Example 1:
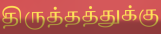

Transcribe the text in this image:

திருத்தத்துக்கு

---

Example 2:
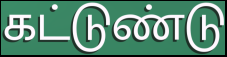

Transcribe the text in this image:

கட்டுண்டு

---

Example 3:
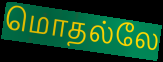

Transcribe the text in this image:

மொதல்லே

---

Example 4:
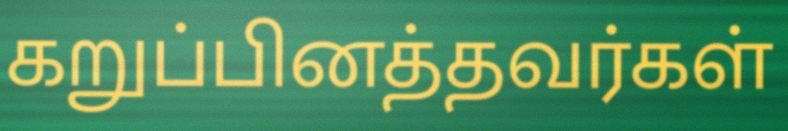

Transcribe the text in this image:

கறுப்பினத்தவர்கள்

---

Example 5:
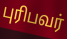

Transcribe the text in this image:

புரிபவர்